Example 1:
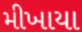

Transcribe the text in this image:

મીખાયા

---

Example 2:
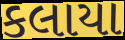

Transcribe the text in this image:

કલાયા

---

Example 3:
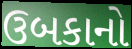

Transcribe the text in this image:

ઉબકાનો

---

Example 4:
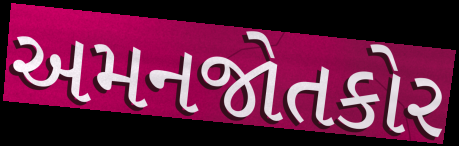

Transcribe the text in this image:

અમનજોતકોર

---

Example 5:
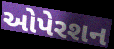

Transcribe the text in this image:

ઓપેરશન